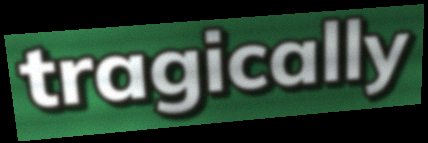
tragically